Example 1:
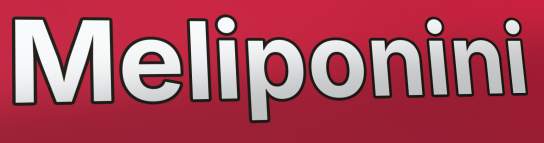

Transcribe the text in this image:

Meliponini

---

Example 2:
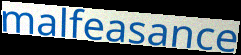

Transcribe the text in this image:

malfeasance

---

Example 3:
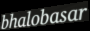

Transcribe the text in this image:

bhalobasar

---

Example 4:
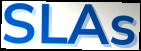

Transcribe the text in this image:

SLAs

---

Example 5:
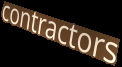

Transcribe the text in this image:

contractors